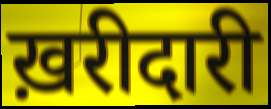
ख़रीदारी